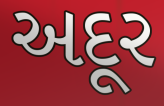
અદૂર